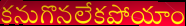
కనుగొనలేకపోయాం